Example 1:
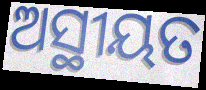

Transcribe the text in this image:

ଅସ୍ଥୀୟତ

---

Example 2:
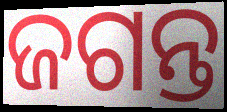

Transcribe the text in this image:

ଜଗନ୍ତ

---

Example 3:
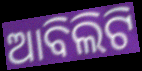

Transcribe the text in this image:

ଆବିଲିଟି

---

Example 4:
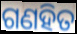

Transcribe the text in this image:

ଗଣହିତ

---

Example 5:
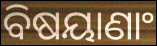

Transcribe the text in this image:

ବିଷୟାଣାଂ